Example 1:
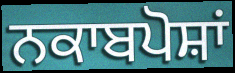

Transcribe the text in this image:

ਨਕਾਬਪੋਸ਼ਾਂ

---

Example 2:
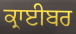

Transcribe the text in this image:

ਕ੍ਰਾਈਬਰ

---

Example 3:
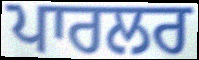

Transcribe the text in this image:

ਪਾਰਲਰ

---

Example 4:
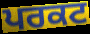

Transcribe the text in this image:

ਪਰਕਟ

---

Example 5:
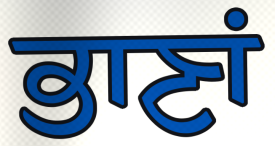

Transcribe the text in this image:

ਭਾਣਾਂ